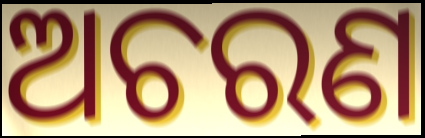
ଅଚରଣ